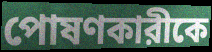
পোষণকারীকে